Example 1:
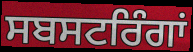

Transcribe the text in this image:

ਸਬਸਟਰਿੰਗਾਂ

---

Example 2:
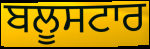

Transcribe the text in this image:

ਬਲੂਸਟਾਰ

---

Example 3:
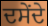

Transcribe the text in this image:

ਦਸੇਂਦੇ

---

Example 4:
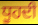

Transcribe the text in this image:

ਧੂਹਦੀ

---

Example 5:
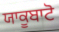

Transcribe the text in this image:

ਯਾਕੂਬਾਟੋ